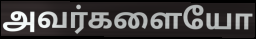
அவர்களையோ